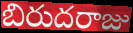
బిరుదరాజు